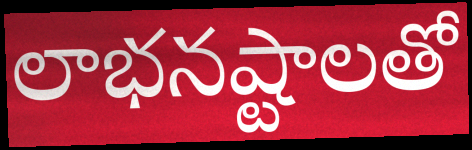
లాభనష్టాలతో